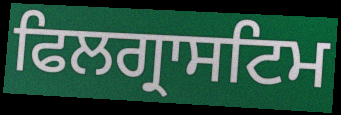
ਫਿਲਗ੍ਰਾਸਟਿਮ